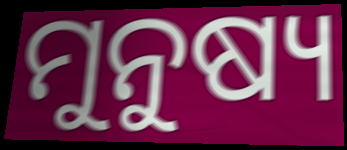
ମୁନୁଷ୍ୟ